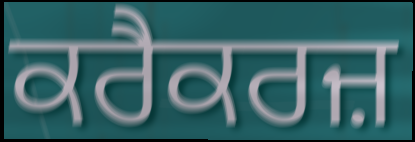
ਕਰੈਕਰਜ਼